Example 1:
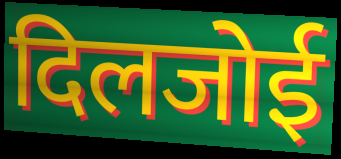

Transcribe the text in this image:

दिलजोई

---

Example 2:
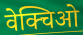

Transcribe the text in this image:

वेक्चिओ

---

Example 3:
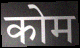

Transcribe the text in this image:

कोम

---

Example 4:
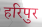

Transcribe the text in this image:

हरिपुर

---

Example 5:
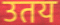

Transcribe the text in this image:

उतय